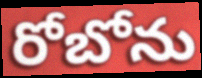
రోబోను